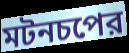
মটনচপের